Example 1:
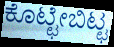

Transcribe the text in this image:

ಕೊಟ್ಟೇಬಿಟ್ಟ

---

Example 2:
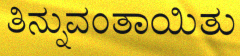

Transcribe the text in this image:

ತಿನ್ನುವಂತಾಯಿತು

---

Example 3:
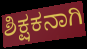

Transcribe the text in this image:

ಶಿಕ್ಷಕನಾಗಿ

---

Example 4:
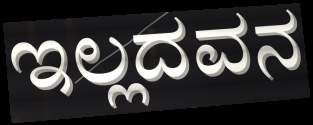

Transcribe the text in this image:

ಇಲ್ಲದವನ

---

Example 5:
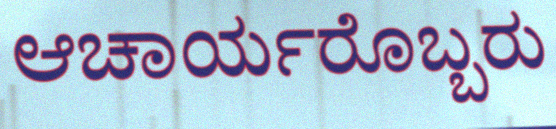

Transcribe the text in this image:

ಆಚಾರ್ಯರೊಬ್ಬರು